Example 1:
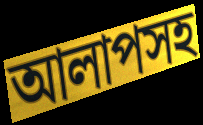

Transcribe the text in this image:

আলাপসহ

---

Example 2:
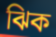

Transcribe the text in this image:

ঝিক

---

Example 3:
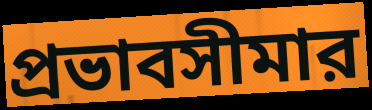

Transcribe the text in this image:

প্রভাবসীমার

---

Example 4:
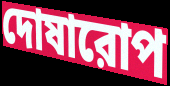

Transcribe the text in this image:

দোষারোপ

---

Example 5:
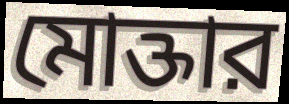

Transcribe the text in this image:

মোক্তার